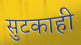
सुटकाही